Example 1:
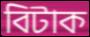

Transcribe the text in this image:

বিটাক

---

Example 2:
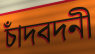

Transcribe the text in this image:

চাঁদবদনী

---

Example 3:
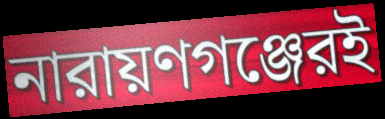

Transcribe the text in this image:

নারায়ণগঞ্জেরই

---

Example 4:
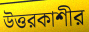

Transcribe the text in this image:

উত্তরকাশীর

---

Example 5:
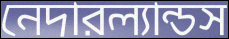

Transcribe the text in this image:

নেদারল্যান্ডস